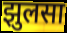
झुलसा